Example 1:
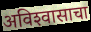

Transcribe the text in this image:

अविश्‍वासाचा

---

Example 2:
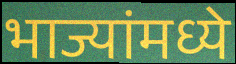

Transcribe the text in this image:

भाज्यांमध्ये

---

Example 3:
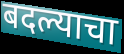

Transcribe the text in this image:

बदल्याचा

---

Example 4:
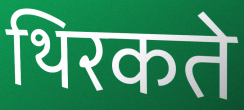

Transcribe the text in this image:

थिरकते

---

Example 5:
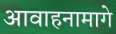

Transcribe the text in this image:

आवाहनामागे